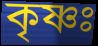
কৃষ্ণঃ